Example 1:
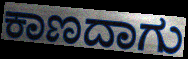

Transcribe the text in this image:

ಕಾಣದಾಗು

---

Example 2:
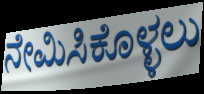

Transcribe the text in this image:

ನೇಮಿಸಿಕೊಳ್ಳಲು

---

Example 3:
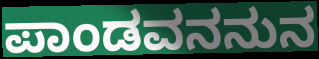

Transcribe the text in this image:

ಪಾಂಡವನನುನ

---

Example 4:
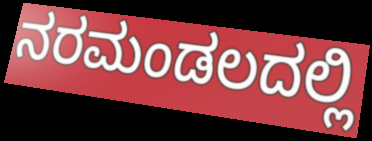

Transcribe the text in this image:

ನರಮಂಡಲದಲ್ಲಿ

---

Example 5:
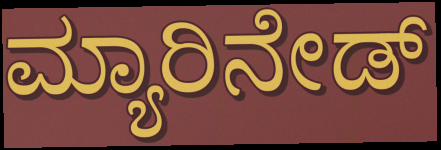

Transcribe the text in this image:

ಮ್ಯಾರಿನೇಡ್